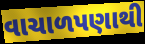
વાચાળપણાથી